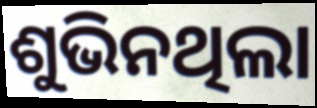
ଶୁଭିନଥିଲା